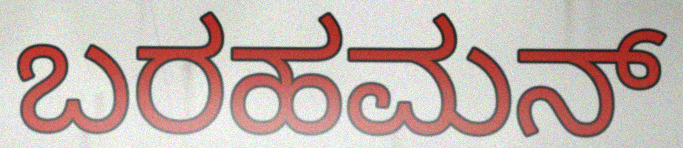
ಬರಹಮನ್